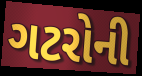
ગટરોની